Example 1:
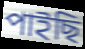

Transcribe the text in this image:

পাইছি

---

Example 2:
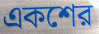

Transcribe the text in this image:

একশের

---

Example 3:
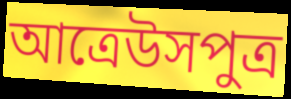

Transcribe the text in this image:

আত্রেউসপুত্র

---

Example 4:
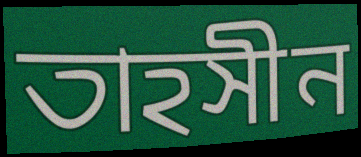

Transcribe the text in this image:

তাহসীন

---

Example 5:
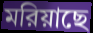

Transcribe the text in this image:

মরিয়াছে